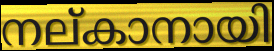
നല്കാനായി